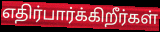
எதிர்பார்க்கிறீர்கள்